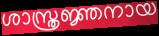
ശാസ്ത്രജ്ഞനായ